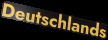
Deutschlands